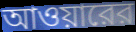
আওয়ারের